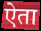
ऐता